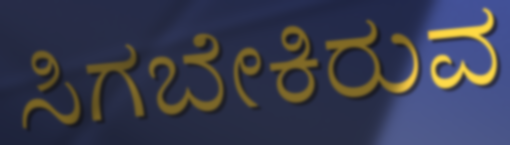
ಸಿಗಬೇಕಿರುವ